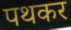
पथकर